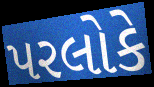
પરલોકે